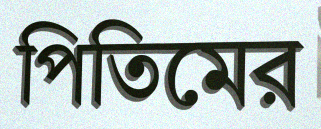
পিতিমের